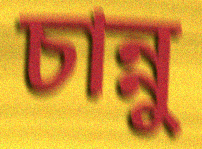
চান্নু